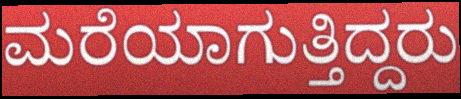
ಮರೆಯಾಗುತ್ತಿದ್ದರು